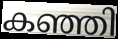
കഞ്ഞി